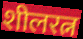
शीलरत्न